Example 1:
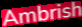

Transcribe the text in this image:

Ambrish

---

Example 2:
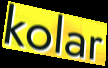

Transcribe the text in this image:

kolar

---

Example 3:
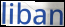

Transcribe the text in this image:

liban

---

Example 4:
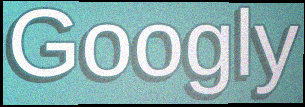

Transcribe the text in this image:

Googly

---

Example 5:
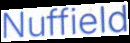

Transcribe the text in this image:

Nuffield